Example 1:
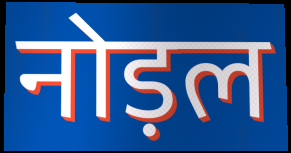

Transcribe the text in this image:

नोड़ल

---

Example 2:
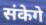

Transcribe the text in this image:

संकेगे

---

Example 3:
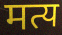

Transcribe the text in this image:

मत्य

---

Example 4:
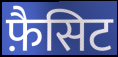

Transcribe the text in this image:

फ़ैसिट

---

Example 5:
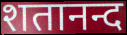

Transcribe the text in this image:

शतानन्द